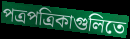
পত্রপত্রিকাগুলিতে